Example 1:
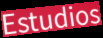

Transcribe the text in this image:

Estudios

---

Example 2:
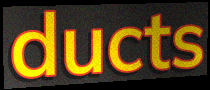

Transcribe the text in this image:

ducts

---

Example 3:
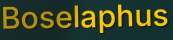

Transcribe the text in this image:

Boselaphus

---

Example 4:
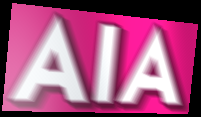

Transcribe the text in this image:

AIA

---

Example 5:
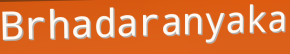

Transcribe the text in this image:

Brhadaranyaka